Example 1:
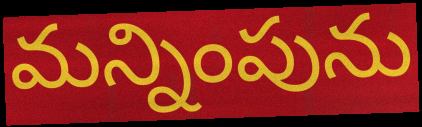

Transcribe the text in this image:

మన్నింపును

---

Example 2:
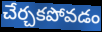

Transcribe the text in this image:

చేర్చకపోవడం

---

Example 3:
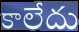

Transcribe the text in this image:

కాలేదు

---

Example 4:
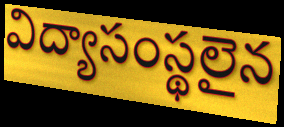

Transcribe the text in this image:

విద్యాసంస్థలైన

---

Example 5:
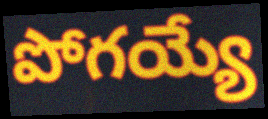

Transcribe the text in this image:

పోగయ్యే